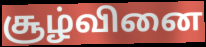
சூழ்வினை